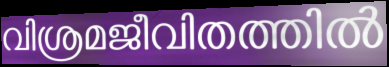
വിശ്രമജീവിതത്തിൽ